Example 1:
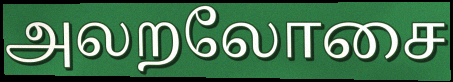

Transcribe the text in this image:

அலறலோசை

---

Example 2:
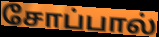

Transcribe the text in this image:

சோப்பால்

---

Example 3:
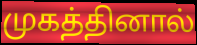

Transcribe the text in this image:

முகத்தினால்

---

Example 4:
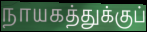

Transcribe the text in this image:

நாயகத்துக்குப்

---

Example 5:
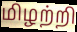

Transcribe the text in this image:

மிழற்றி